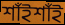
শাঁইশাঁই